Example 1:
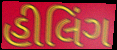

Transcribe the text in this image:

હીલિંગ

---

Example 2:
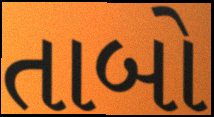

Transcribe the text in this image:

તાબો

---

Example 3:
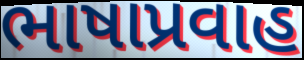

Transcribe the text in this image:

ભાષાપ્રવાહ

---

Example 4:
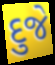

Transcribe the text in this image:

દુજે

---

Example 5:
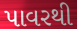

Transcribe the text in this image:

પાવરથી